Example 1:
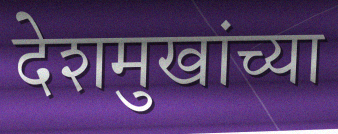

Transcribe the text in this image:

देशमुखांच्या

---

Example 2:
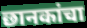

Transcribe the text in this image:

छानकांचा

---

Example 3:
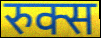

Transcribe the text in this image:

रुक्स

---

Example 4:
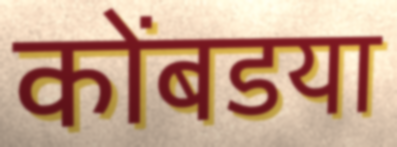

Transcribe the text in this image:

कोंबडया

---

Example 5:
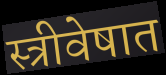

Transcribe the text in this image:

स्त्रीवेषात